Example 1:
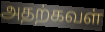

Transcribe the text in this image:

அதற்கவள்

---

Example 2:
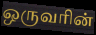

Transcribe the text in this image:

ஒருவரின்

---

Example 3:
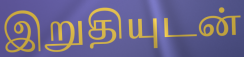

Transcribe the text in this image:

இறுதியுடன்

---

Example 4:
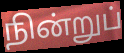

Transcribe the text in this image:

நின்றுப்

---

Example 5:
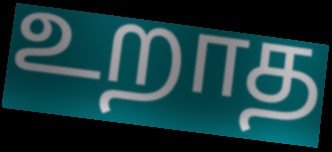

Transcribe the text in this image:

உறாத